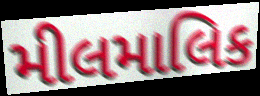
મીલમાલિક